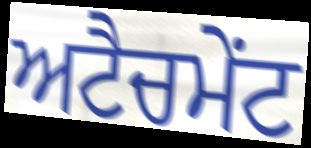
ਅਟੈਚਮੇਂਟ